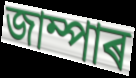
জাম্পাৰ